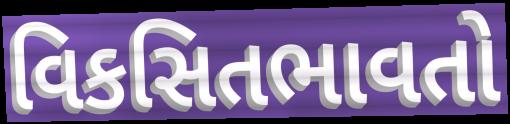
વિકસિતભાવતો